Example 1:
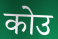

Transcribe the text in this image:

कोउ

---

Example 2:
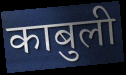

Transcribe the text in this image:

काबुली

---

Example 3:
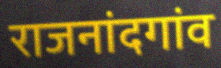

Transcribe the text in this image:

राजनांदगांव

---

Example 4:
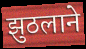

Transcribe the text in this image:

झुठलाने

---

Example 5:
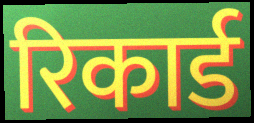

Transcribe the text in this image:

रिकार्ड